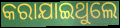
କରାଯାଇଥୁଲେ